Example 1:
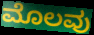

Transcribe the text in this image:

ಮೊಲವು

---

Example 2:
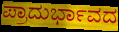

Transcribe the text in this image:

ಪ್ರಾದುರ್ಭಾವದ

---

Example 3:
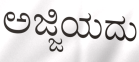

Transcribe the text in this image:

ಅಜ್ಜಿಯದು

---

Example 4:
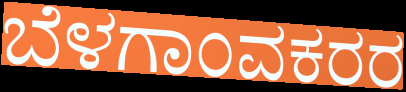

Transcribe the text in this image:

ಬೆಳಗಾಂವಕರರ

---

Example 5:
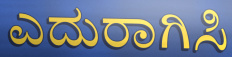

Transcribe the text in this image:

ಎದುರಾಗಿಸಿ